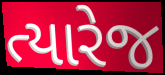
ત્યારેજ